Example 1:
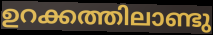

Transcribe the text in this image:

ഉറക്കത്തിലാണ്ടു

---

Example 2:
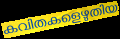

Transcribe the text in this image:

കവിതകളെഴുതിയ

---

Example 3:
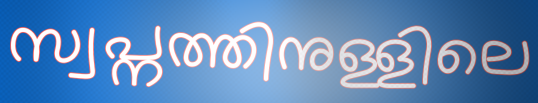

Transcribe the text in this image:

സ്വപ്നത്തിനുള്ളിലെ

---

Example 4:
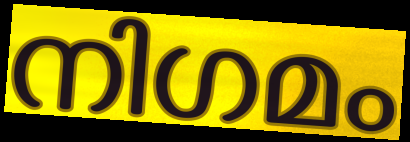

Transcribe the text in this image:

നിഗമം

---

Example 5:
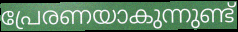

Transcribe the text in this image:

പ്രേരണയാകുന്നുണ്ട്